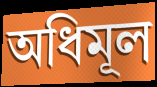
অধিমূল